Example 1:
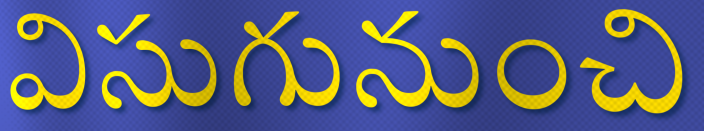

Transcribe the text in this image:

విసుగునుంచి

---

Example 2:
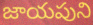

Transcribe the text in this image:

జాయపుని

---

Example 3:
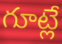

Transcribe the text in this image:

గూట్లే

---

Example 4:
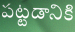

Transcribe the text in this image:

పట్టడానికి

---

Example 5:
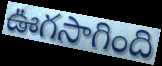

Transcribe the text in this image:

ఊగసాగింది